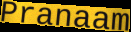
Pranaam